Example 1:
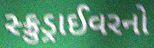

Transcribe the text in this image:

સ્ક્રુડ્રાઈવરનો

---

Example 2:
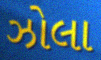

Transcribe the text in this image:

ઝોલા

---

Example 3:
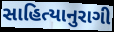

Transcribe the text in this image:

સાહિત્યાનુરાગી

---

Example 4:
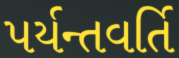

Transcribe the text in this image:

પર્યન્તવર્તિ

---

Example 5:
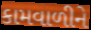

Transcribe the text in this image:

કામવાળીને